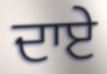
ਦਾਏ